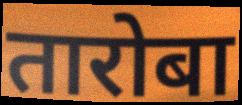
तारोबा